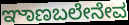
ಞಾಣಬಲೇನೇವ